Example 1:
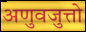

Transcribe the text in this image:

अणुवजुत्तो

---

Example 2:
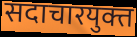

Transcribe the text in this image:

सदाचारयुक्त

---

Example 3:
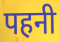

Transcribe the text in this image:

पहनी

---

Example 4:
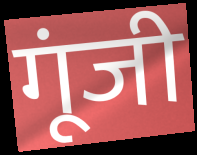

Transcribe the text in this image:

गूंजी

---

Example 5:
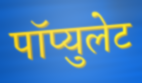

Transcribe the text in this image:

पॉप्युलेट